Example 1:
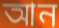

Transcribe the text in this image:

আন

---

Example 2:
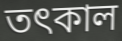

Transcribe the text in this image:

তৎকাল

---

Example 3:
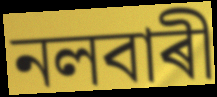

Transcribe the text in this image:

নলবাৰী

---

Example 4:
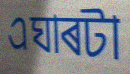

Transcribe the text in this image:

এঘাৰটা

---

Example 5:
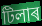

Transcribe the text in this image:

টিলাৰ